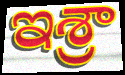
ఇశ్రా